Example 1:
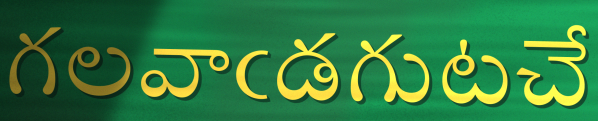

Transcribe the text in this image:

గలవాఁడగుటచే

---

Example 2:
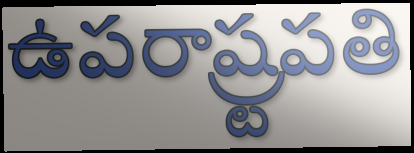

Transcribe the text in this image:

ఉపరాష్ర్టపతి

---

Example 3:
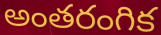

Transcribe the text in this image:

అంతరంగిక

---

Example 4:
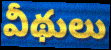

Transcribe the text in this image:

వీథులు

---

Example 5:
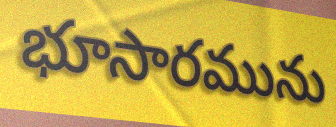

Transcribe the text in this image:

భూసారమును